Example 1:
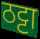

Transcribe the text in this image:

ठट्टा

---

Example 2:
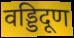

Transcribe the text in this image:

वड्डिदूण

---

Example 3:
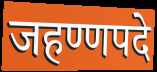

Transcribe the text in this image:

जहण्णपदे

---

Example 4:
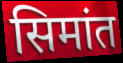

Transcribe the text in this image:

सिमांत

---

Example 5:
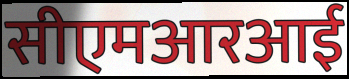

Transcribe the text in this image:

सीएमआरआई